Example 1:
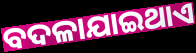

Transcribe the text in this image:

ବଦଳାଯାଇଥାଏ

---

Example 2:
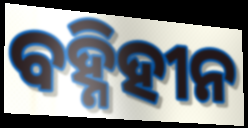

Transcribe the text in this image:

ବହ୍ନିହୀନ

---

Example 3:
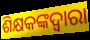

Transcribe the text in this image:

ଶିକ୍ଷକଙ୍କଦ୍ଵାରା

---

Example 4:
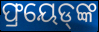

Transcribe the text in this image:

ଫ୍ରୟେଡ୍‍ଙ୍କ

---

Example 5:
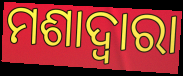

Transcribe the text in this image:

ମଶାଦ୍ୱାରା